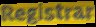
Registrar